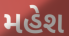
મહેશ